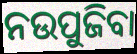
ନଉପୁଜିବା